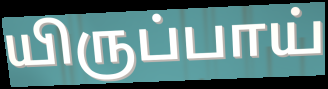
யிருப்பாய்